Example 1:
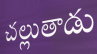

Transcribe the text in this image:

చల్లుతాడు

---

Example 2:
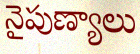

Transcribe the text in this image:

నైపుణ్యాలు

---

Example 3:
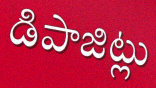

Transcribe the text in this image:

డిపాజిట్లు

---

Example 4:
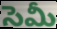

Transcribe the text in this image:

సెమీ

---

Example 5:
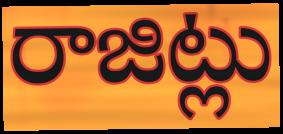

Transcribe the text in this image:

రాజిట్లు